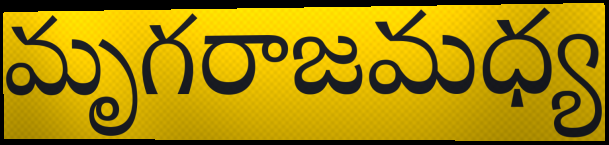
మృగరాజమధ్య